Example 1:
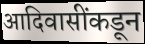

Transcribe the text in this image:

आदिवासींकडून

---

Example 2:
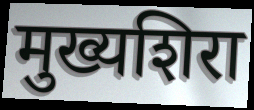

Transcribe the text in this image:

मुख्यशिरा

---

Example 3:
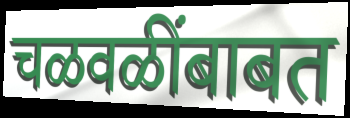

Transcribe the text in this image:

चळवळींबाबत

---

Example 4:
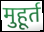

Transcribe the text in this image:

मुहूर्त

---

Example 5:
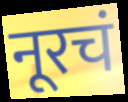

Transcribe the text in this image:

नूरचं